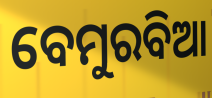
ବେମୁରବିଆ